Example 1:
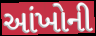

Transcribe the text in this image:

આંખોની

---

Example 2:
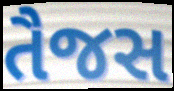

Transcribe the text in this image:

તૈજસ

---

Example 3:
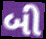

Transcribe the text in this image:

બી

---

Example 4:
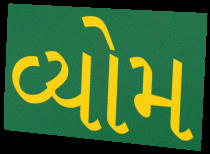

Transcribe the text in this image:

વ્યોમ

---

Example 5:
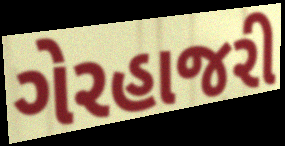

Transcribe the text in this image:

ગેરહાજરી